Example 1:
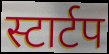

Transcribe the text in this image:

स्टार्टप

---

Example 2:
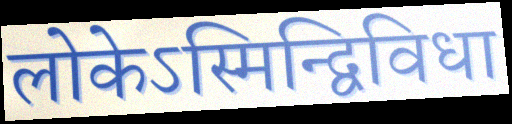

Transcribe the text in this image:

लोकेऽस्मिन्द्विविधा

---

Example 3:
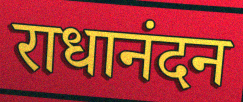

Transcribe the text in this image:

राधानंदन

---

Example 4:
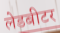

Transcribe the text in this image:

लेडबीटर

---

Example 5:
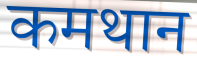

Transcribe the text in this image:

कमथान